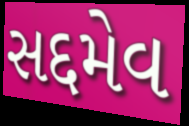
સદ્દમેવ